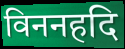
विननहदि